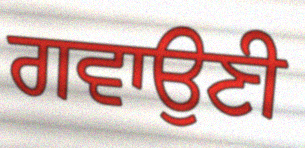
ਗਵਾਉਣੀ